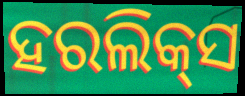
ହରଲିକ୍‌ସ